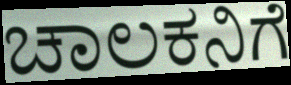
ಚಾಲಕನಿಗೆ